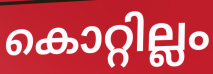
കൊറ്റില്ലം